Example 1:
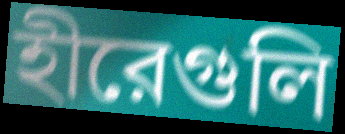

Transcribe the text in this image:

হীরেগুলি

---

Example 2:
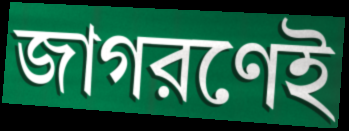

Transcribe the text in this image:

জাগরণেই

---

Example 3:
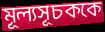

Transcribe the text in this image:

মূল্যসূচককে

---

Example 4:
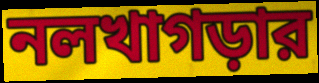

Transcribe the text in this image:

নলখাগড়ার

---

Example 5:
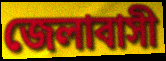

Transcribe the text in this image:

জেলাবাসী